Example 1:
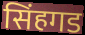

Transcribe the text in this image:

सिंहगड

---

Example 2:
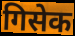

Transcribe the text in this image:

गिसेक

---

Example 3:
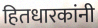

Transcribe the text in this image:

हितधारकांनी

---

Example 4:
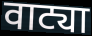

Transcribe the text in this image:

वाट्या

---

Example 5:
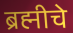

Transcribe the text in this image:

ब्रह्मीचे